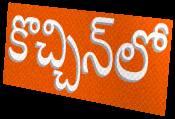
కొచ్చిన్‌లో